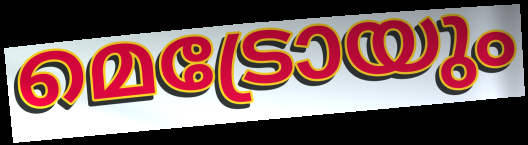
മെട്രോയും